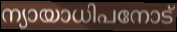
ന്യായാധിപനോട്